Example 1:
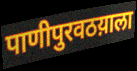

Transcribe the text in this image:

पाणीपुरवठय़ाला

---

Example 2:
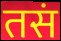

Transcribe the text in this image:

तसं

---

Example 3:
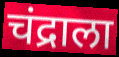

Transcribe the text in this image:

चंद्राला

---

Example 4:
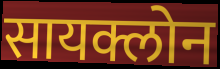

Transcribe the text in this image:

सायक्लोन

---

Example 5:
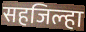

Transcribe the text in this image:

सहजिल्हा